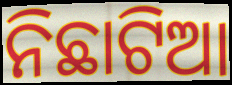
ନିଛାଟିଆ